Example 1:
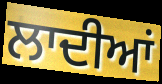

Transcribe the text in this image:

ਲਾਦੀਆਂ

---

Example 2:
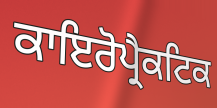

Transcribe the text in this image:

ਕਾਇਰੋਪ੍ਰੈਕਟਿਕ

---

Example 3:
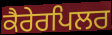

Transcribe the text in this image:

ਕੈਰੇਰਪਿਲਰ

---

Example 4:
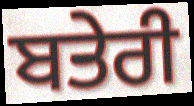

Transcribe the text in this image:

ਬਤੇਰੀ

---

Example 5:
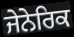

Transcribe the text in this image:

ਜੇਨੇਰਿਕ